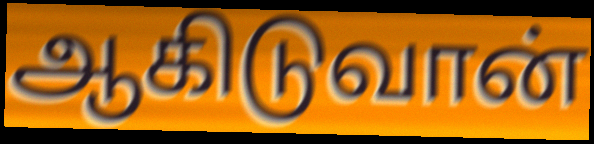
ஆகிடுவான்